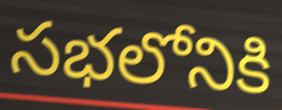
సభలోనికి